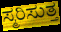
ಸ್ಮರಿಸುತ್ತ